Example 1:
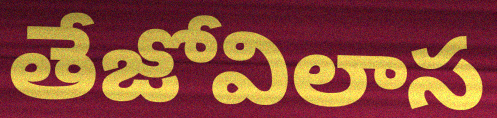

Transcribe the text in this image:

తేజోవిలాస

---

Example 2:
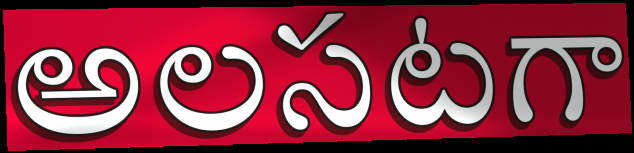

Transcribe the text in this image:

అలసటగా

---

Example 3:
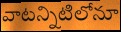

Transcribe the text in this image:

వాటన్నిటిలోనూ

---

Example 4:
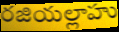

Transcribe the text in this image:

రజియల్లాహు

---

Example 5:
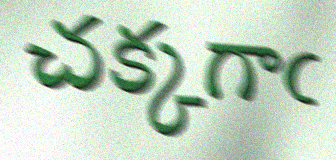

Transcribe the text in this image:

చక్కగాఁ